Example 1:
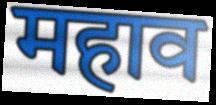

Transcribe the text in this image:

महाव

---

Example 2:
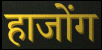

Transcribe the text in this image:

हाजोंग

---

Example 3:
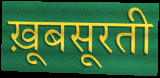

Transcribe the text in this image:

ख़ूबसूरती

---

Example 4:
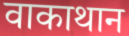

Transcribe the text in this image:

वाकाथान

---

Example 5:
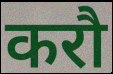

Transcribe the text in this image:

करौ